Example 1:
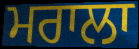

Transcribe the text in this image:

ਮਰਾਲਾ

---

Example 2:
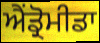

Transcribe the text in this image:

ਐਂਡ੍ਰੋਮੀਡਾ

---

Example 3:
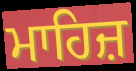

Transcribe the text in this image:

ਮਾਹਿਜ਼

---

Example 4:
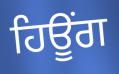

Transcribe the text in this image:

ਹਿਊੰਗ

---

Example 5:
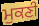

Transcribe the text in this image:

ਮੁਕਣੀ